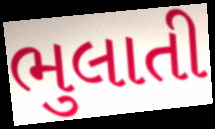
ભુલાતી